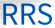
RRS